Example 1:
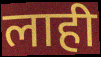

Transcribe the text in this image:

लाही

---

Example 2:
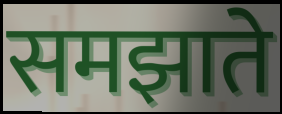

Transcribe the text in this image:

समझाते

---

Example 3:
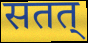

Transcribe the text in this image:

सतत्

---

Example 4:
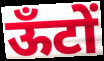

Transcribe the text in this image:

ऊँटों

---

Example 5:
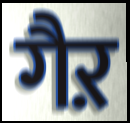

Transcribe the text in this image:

गैऱ